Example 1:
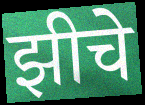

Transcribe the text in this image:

झीचे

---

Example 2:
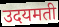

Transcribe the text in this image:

उदयमती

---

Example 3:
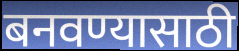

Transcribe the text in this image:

बनवण्‍यासाठी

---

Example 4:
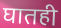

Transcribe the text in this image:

घातही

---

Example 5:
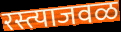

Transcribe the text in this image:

रस्त्याजवळ